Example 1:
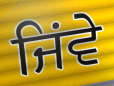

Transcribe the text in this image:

ਜਿਂਵੇ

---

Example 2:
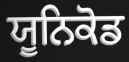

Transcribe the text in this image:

ਯੂਨਿਕੋਡ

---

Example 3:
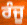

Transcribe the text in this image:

ਰੰਜੂ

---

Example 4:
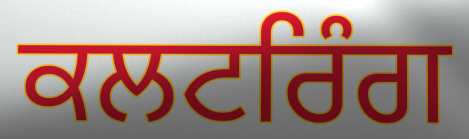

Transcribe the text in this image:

ਕਲਟਰਿੰਗ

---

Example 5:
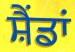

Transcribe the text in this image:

ਸ਼ੈਂਡਾਂ